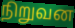
நிறுவன